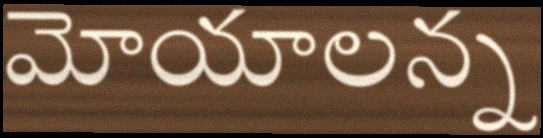
మోయాలన్న